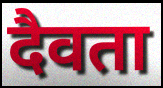
दैवता